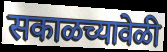
सकाळच्यावेळी